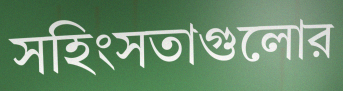
সহিংসতাগুলোর